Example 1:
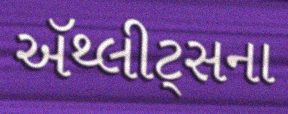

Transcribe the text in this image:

ઍથ્લીટ્સના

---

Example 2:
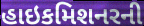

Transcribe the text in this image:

હાઇકમિશનરની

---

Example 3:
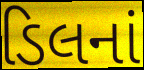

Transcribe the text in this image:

ડિલનાં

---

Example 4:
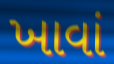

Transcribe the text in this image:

ખાવાં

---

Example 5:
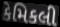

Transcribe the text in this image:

કેમિકલી